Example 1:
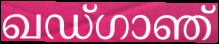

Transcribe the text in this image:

ഖഡ്ഗാഞ്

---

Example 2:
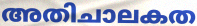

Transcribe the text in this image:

അതിചാലകത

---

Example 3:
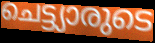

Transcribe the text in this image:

ചെട്ട്യാരുടെ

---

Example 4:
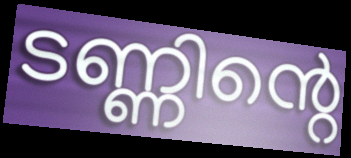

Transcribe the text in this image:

ടണ്ണിന്റെ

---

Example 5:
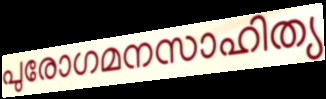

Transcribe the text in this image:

പുരോഗമനസാഹിത്യ